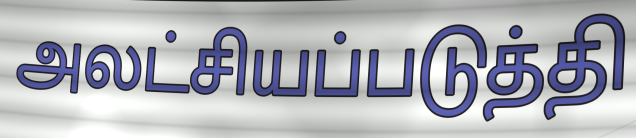
அலட்சியப்படுத்தி